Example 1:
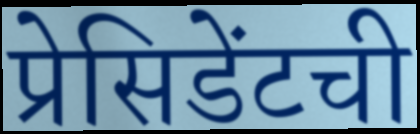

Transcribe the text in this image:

प्रेसिडेंटची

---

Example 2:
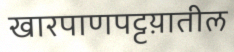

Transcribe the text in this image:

खारपाणपट्टय़ातील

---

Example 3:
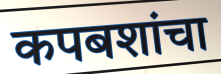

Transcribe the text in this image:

कपबशांचा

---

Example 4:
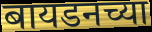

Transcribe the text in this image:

बायडनच्या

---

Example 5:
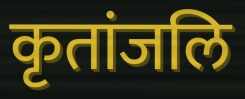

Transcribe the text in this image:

कृतांजलि